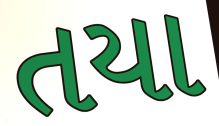
તયા